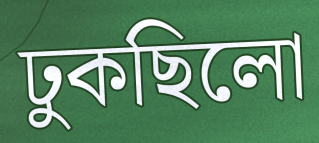
ঢুকছিলো